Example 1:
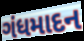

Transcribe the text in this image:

ગંધમાદન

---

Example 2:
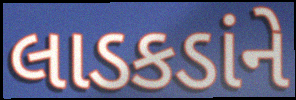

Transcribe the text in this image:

લાડકડાંને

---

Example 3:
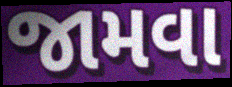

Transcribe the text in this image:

જામવા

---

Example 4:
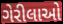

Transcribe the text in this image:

ગેરીલાઓ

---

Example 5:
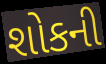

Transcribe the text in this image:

શોકની